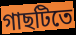
গাছটিতে